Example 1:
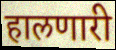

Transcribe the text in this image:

हालणारी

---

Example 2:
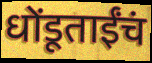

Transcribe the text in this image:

धोंडूताईंचं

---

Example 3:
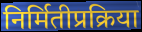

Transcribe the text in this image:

निर्मितीप्रक्रिया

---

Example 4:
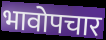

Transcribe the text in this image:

भावोपचार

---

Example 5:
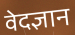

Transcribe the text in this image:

वेदज्ञान